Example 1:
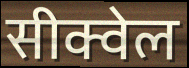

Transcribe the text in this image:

सीक्वेल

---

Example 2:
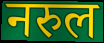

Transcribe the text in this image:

नरुल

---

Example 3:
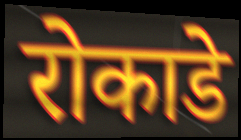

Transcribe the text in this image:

रोकाडे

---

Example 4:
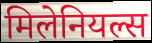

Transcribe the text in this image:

मिलेनियल्स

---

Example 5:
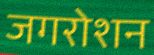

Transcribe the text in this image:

जगरोशन